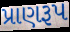
પ્રાણરૂપ